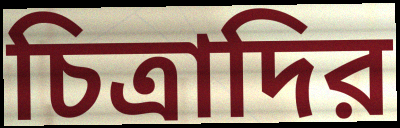
চিত্রাদির